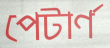
পেটাৰ্ণ